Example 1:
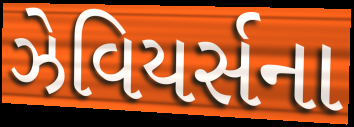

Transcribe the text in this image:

ઝેવિયર્સના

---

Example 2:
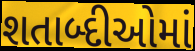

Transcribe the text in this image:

શતાબ્દીઓમાં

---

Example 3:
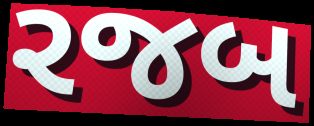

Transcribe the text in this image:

રજબ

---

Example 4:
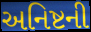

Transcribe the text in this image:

અનિષ્ટની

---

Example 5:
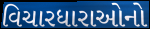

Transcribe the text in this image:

વિચારધારાઓનો